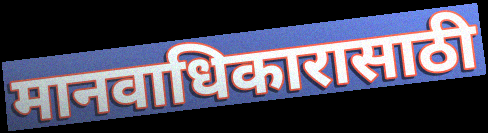
मानवाधिकारासाठी